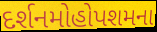
દર્શનમોહોપશમના